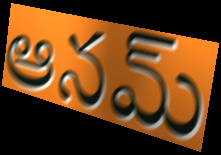
ఆనమ్